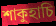
শাকুহাচি